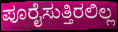
ಪೂರೈಸುತ್ತಿರಲಿಲ್ಲ